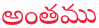
అంతము